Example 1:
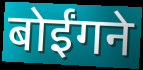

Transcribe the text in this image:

बोईंगने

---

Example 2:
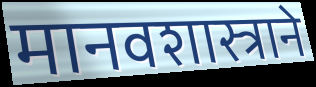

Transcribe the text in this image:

मानवशास्त्राने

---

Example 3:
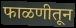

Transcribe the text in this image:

फाळणीतून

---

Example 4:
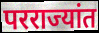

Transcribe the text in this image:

परराज्यांत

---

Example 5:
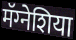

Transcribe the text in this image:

मॅग्‍नेशिया